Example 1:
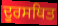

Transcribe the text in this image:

ਦੂਰਸਥਿਤ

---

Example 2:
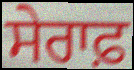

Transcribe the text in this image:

ਸੇਰਾਫ਼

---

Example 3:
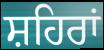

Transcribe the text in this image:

ਸ਼ਹਿਰਾਂ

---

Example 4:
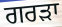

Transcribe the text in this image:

ਗਰੜਾ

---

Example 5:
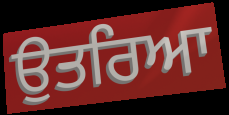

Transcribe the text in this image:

ਉਤਰਿਆ